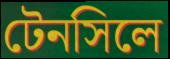
টেনসিলে